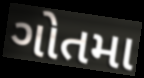
ગોતમા